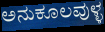
ಅನುಕೂಲವುಳ್ಳ